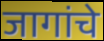
जागांचे